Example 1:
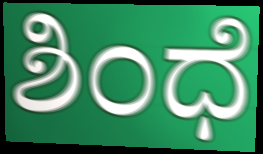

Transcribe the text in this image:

ಶಿಂಧೆ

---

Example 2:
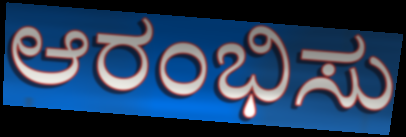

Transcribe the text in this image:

ಆರಂಭಿಸು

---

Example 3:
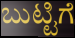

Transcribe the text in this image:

ಬುಟ್ಟಿಗೆ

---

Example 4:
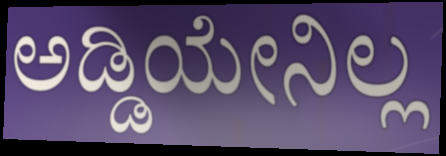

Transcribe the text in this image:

ಅಡ್ಡಿಯೇನಿಲ್ಲ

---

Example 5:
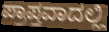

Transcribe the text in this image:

ಪ್ರಾಪ್ತವಾದಲ್ಲಿ